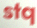
stq